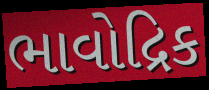
ભાવોદ્રિક